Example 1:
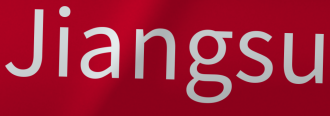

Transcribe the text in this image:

Jiangsu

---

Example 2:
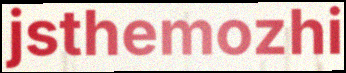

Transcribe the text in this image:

jsthemozhi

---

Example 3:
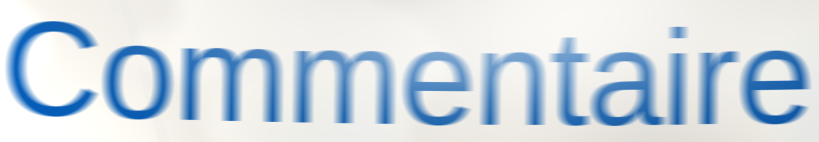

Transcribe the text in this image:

Commentaire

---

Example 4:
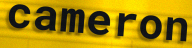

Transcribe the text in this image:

cameron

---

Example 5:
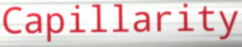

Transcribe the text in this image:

Capillarity